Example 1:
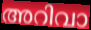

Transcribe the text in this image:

അറിവാ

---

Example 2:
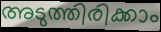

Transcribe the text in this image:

അടുത്തിരിക്കാം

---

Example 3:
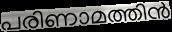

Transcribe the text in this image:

പരിണാമത്തിൻ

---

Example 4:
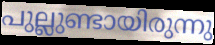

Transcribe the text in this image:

പുല്ലുണ്ടായിരുന്നു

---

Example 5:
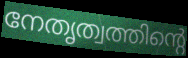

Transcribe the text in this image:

നേതൃത്വത്തിന്റെ